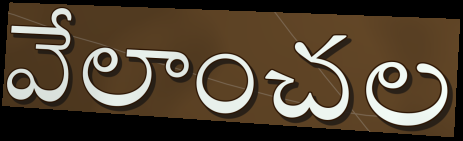
వేలాంచల